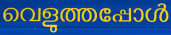
വെളുത്തപ്പോൾ